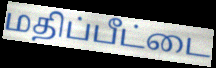
மதிப்பீட்டை